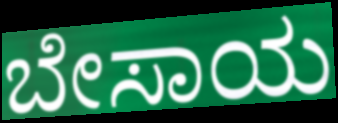
ಬೇಸಾಯ